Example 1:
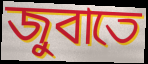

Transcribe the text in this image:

জুবাতে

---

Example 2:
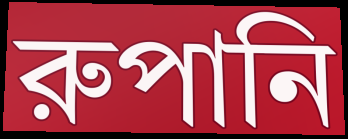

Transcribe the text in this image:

রুপানি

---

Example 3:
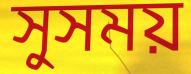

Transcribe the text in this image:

সুসময়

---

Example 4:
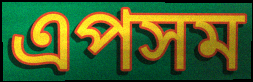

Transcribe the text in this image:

এপসম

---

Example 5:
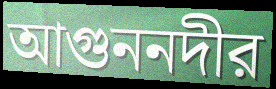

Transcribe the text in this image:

আগুননদীর